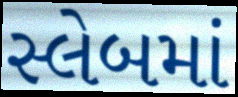
સ્લેબમાં